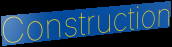
Construction